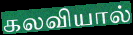
கலவியால்